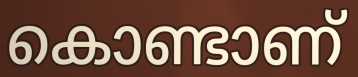
കൊണ്ടാണ്